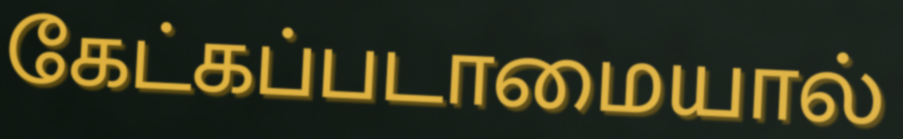
கேட்கப்படாமையால்